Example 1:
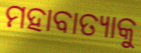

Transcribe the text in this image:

ମହାବାତ୍ୟାକୁ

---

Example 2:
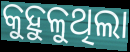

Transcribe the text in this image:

କୁହୁଳୁଥିଲା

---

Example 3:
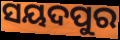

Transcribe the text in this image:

ସୟଦପୁର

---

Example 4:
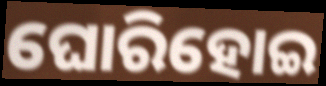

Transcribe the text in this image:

ଘୋରିହୋଇ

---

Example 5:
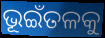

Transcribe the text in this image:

ଭୂଇଁତଳକୁ